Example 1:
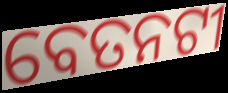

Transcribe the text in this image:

ବେତନଟୀ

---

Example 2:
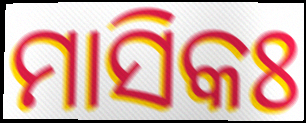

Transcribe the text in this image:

ମାସିକଃ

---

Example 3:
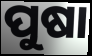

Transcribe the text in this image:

ପୁଷା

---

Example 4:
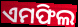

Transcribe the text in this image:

ଏମଫିଲ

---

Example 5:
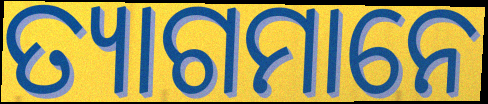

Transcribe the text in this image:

ତ୍ୟାଗମାନେ